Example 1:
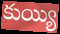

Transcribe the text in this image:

కుయ్యి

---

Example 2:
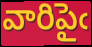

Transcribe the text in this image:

వారిపైఁ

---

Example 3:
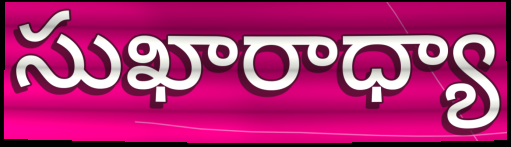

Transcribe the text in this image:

సుఖారాధ్యా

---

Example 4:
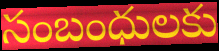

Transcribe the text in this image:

సంబంధులకు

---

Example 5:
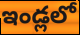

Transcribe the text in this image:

ఇండ్లలో